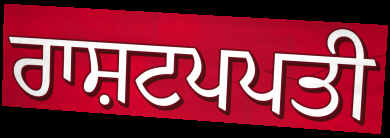
ਰਾਸ਼ਟਪਪਤੀ